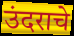
उंदराचे